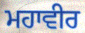
ਮਹਾਵੀਰ